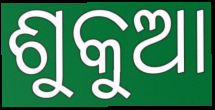
ଶୁକୁଆ